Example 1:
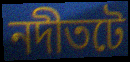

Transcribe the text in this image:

নদীতটে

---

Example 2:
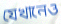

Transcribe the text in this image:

যেখানেও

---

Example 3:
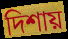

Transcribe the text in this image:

দিশায়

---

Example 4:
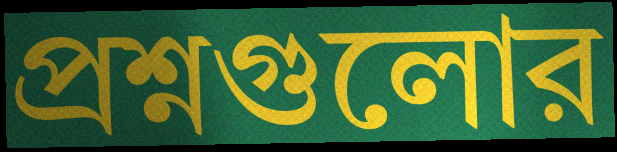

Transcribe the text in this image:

প্রশ্নগুলোর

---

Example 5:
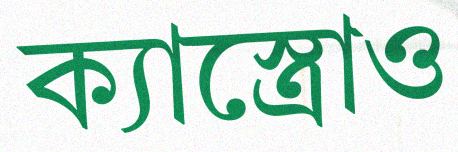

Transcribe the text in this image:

ক্যাস্ত্রোও